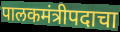
पालकमंत्रीपदाचा